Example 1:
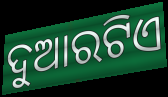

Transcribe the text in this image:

ଦୁଆରଟିଏ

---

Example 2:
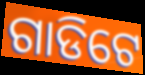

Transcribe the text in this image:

ଗାଡିଟେ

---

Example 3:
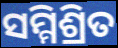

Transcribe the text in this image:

ସମ୍ମିଶ୍ରିତ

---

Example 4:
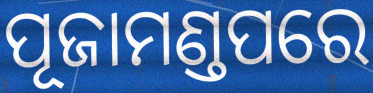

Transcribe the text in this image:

ପୂଜାମଣ୍ଡପରେ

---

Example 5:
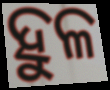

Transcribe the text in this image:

ହୁଳ